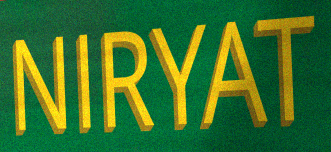
NIRYAT